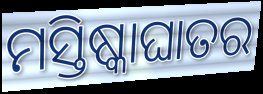
ମସ୍ତିଷ୍କାଘାତର